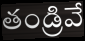
తండ్రివే